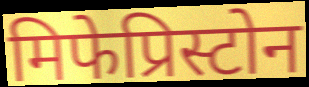
मिफेप्रिस्टोन